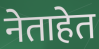
नेताहेत